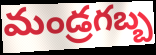
మండ్రగబ్బ